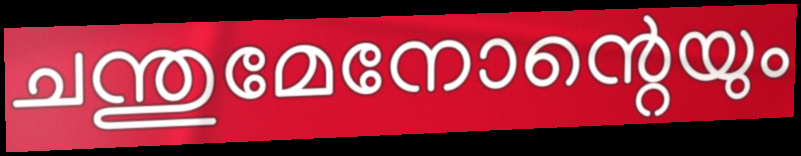
ചന്തുമേനോന്റെയും